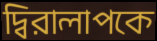
দ্বিরালাপকে